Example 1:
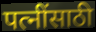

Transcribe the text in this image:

पत्नींसाठी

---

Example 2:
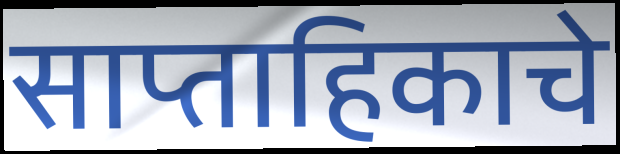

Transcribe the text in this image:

साप्ताहिकाचे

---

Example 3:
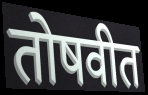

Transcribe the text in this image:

तोषवीत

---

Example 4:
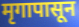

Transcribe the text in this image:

मृगापासून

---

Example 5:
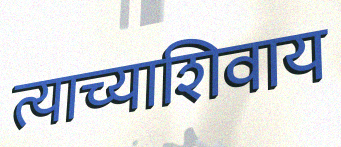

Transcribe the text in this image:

त्याच्याशिवाय